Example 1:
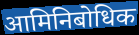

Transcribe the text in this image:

आमिनिबोधिक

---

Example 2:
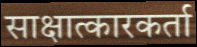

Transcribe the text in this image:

साक्षात्कारकर्ता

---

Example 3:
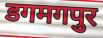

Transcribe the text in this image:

डगमगपुर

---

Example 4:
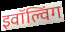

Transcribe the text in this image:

इवॉल्विंग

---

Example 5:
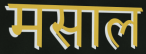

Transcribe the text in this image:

मसाल